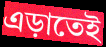
এড়াতেই